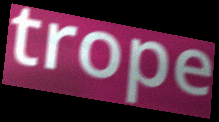
trope